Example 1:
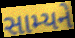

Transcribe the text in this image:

સામ્યને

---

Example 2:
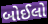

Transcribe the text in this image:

બોઈલો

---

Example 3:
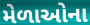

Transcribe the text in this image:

મેળાઓના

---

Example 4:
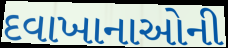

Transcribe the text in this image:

દવાખાનાઓની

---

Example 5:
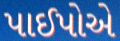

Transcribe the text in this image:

પાઈપોએ